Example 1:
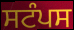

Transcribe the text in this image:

ਸਟੰਪਸ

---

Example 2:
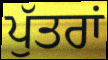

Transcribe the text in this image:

ਪੁੱਤਰਾਂ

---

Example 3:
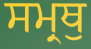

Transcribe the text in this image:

ਸਮ੍ਰਥੁ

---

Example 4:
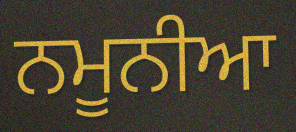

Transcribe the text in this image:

ਨਮੂਨੀਆ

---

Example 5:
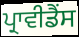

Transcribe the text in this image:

ਪ੍ਰਾਵੀਡੈਂਸ